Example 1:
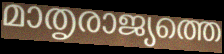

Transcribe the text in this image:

മാതൃരാജ്യത്തെ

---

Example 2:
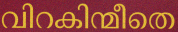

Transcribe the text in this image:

വിറകിന്മീതെ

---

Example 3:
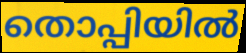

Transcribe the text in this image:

തൊപ്പിയിൽ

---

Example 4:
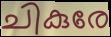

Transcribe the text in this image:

ചികുരേ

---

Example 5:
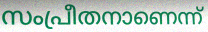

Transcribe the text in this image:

സംപ്രീതനാണെന്ന്